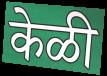
केळी